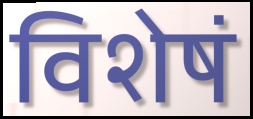
विशेषं